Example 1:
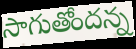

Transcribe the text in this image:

సాగుతోందన్న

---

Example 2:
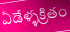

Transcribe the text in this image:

ఏడేళ్ళక్రితం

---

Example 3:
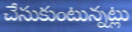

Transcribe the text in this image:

చేసుకుంటున్నట్లు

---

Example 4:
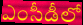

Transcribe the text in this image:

ఎంసీడీలో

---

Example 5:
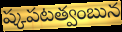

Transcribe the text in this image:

ష్కపటత్వంబున